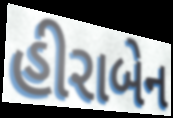
હીરાબેન